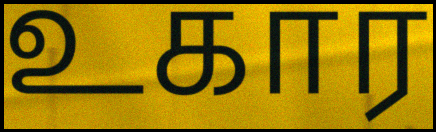
உகார